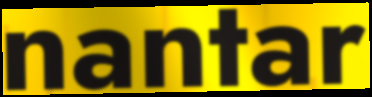
nantar